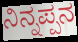
ನಿನ್ನಪ್ಪನ